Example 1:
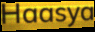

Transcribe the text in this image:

Haasya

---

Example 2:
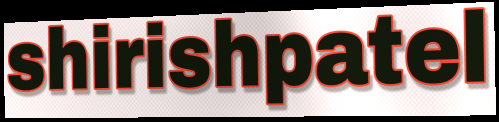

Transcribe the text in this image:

shirishpatel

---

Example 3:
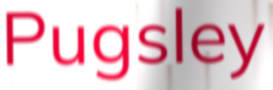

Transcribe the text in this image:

Pugsley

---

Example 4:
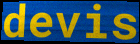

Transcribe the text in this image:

devis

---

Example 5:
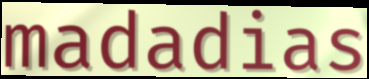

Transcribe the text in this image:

madadias